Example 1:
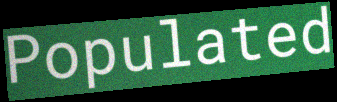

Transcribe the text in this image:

Populated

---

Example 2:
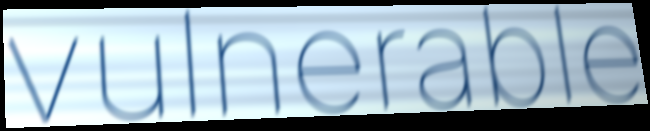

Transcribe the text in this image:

vulnerable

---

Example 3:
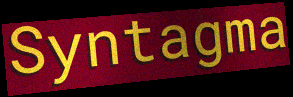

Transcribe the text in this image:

Syntagma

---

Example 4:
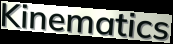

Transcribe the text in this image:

Kinematics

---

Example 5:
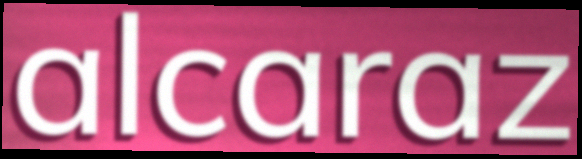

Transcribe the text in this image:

alcaraz